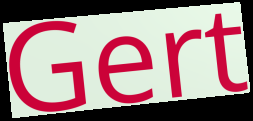
Gert